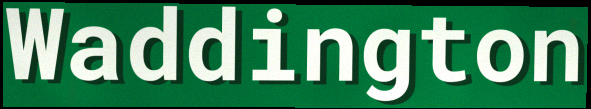
Waddington